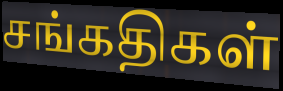
சங்கதிகள்